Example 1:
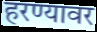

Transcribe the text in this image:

हरण्यावर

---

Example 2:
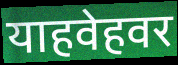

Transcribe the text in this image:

याहवेहवर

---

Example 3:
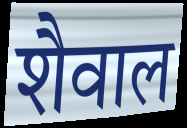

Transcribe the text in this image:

शैवाल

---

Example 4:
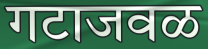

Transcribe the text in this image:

गटाजवळ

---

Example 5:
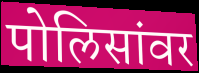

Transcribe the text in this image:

पोलिसांवर